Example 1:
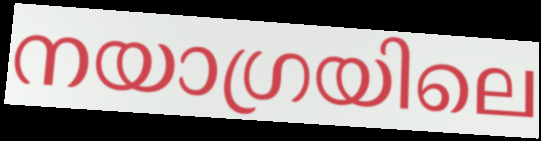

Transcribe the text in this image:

നയാഗ്രയിലെ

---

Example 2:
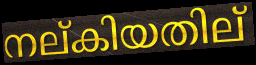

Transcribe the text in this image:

നല്കിയതില്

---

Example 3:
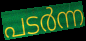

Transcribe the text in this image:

പടർന്ന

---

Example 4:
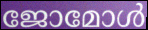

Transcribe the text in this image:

ജോമോൾ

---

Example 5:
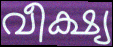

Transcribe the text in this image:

വീക്ഷ്യ